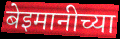
बेइमानीच्या